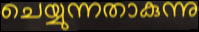
ചെയ്യുന്നതാകുന്നു